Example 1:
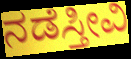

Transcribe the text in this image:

ನಡೆಸ್ತೀವಿ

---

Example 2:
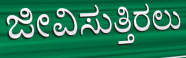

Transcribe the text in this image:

ಜೀವಿಸುತ್ತಿರಲು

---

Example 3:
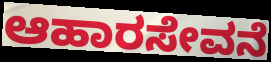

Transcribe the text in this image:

ಆಹಾರಸೇವನೆ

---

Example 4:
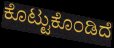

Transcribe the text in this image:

ಕೊಟ್ಟುಕೊಂಡಿದೆ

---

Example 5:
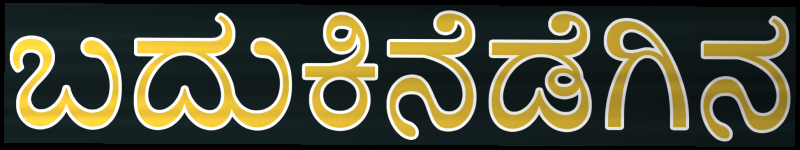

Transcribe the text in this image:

ಬದುಕಿನೆಡೆಗಿನ